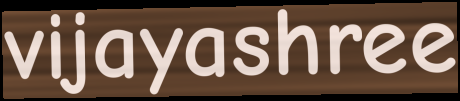
vijayashree